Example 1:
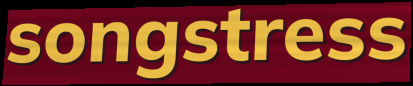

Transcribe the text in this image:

songstress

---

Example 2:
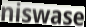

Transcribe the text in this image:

niswase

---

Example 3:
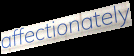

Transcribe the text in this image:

affectionately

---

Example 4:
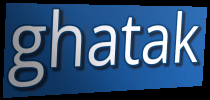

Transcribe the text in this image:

ghatak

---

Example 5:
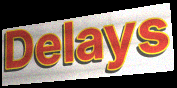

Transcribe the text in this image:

Delays